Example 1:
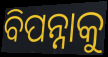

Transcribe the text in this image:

ବିପନ୍ନାକୁ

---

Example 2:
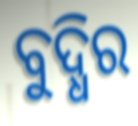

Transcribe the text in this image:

ବୁଦ୍ଧିର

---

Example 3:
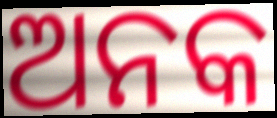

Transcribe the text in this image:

ଅନକ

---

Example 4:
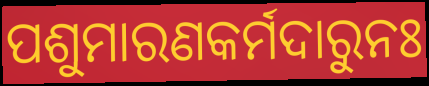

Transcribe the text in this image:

ପଶୁମାରଣକର୍ମଦାରୁନଃ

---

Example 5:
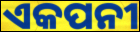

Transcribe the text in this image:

ଏକପନୀ